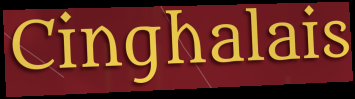
Cinghalais